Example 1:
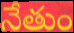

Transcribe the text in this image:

నేతుం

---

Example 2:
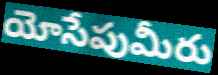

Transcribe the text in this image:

యోసేపుమీరు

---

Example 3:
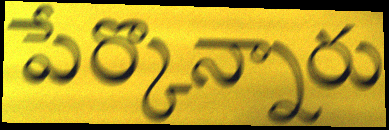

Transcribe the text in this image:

పేర్కొన్నారు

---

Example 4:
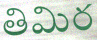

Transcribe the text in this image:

తిమిర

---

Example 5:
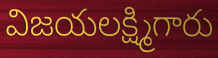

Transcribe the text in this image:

విజయలక్ష్మిగారు